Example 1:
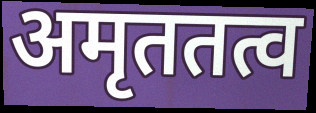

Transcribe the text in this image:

अमृततत्व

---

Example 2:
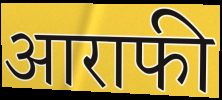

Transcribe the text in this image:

आराफी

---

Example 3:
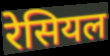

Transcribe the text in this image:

रेसियल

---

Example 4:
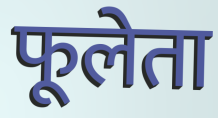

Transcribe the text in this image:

फूलेता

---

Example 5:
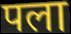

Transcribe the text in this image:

पला